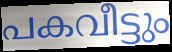
പകവീട്ടും